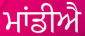
ਮਾਂਡੀਐ